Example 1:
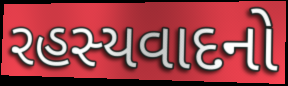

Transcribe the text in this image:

રહસ્યવાદનો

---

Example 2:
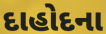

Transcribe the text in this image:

દાહોદના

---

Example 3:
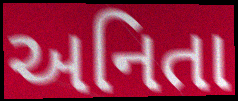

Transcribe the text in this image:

અનિતા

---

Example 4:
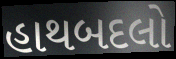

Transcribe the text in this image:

હાથબદલો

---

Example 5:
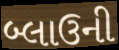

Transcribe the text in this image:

બ્લાઉની